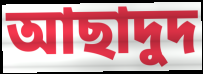
আছাদুদ